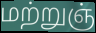
மற்றுஞ்